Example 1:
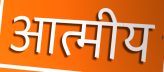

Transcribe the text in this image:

आत्मीय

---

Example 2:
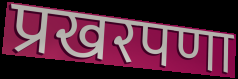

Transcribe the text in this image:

प्रखरपणा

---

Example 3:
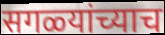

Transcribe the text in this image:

सगळ्यांच्याच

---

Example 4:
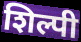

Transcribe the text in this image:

शिल्पी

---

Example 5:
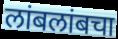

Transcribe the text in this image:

लांबलांबचा